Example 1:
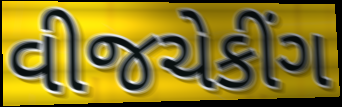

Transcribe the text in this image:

વીજચેકીંગ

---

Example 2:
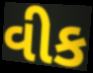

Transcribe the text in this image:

વીક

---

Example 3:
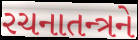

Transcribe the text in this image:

રચનાતન્ત્રને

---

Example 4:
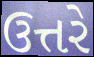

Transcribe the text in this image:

ઉત્તરે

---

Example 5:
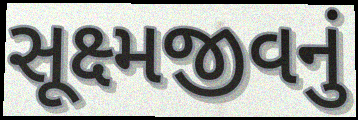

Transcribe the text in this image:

સૂક્ષ્મજીવનું